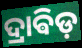
ଦ୍ରାଵିଡ଼